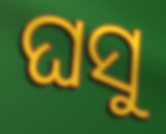
ଘସୁ